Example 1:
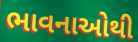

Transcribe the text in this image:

ભાવનાઓથી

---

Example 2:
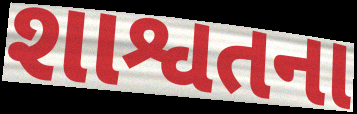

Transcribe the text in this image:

શાશ્વતના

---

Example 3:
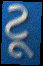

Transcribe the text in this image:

ટૂ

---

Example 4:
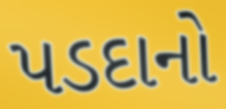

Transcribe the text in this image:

પડદાનો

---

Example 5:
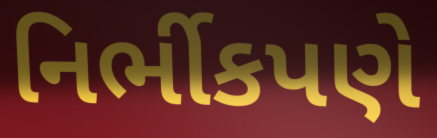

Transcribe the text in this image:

નિર્ભીકપણે